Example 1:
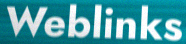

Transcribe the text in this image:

Weblinks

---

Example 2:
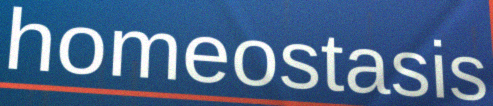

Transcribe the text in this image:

homeostasis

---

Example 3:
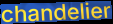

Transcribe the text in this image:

chandelier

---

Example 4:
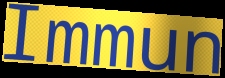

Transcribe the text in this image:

Immun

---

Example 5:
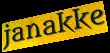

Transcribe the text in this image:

janakke